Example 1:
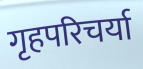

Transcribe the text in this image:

गृहपरिचर्या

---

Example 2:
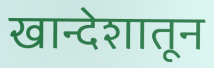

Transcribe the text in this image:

खान्देशातून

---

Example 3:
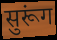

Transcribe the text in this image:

सुरूंग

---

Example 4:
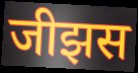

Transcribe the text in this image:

जीझस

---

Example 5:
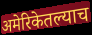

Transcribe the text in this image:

अमेरिकेतल्याच